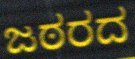
ಜಠರದ